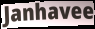
Janhavee